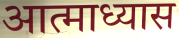
आत्माध्यास